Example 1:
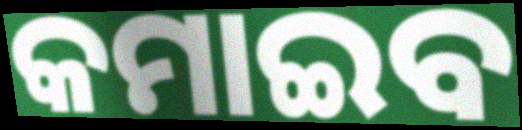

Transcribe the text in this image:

କମାଇବ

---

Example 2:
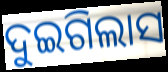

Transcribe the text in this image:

ଦୁଇଗିଲାସ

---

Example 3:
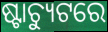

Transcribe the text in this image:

ଷ୍ଟାଚ୍ୟୁଟରେ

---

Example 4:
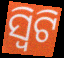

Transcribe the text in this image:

ସ୍ୱିଟି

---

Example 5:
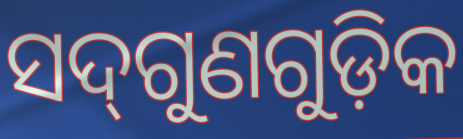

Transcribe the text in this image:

ସଦ୍‌ଗୁଣଗୁଡ଼ିକ